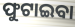
ଫୁଟାଇବା